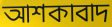
আশকাবাদ